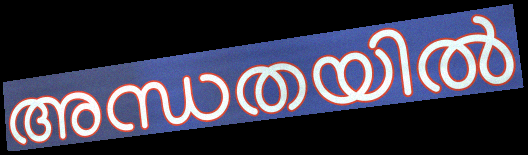
അന്ധതയിൽ